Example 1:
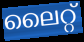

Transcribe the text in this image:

ലൈറ്റ്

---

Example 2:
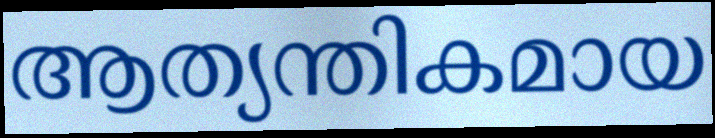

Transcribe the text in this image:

ആത്യന്തികമായ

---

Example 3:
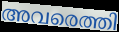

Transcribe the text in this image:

അവരെത്തി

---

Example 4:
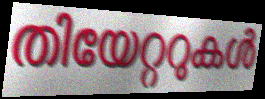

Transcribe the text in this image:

തിയേറ്ററുകൾ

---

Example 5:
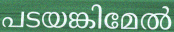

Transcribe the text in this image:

പടയങ്കിമേൽ